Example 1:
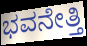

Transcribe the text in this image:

ಭವನೇತ್ತಿ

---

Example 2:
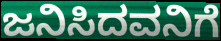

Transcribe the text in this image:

ಜನಿಸಿದವನಿಗೆ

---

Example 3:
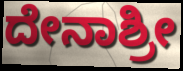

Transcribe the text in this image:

ದೇನಾಶ್ರೀ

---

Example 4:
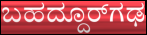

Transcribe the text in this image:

ಬಹದ್ದೂರ್‌ಗಢ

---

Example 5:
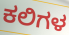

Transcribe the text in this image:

ಕಲಿಗಳ